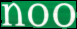
noo